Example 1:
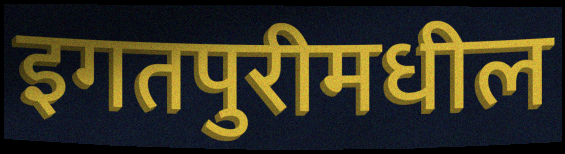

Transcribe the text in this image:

इगतपुरीमधील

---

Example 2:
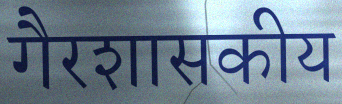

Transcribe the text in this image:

गैरशासकीय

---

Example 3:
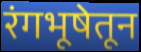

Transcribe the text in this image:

रंगभूषेतून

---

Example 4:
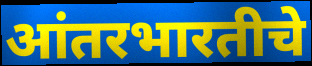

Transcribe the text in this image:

आंतरभारतीचे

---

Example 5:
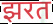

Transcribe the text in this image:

झरत